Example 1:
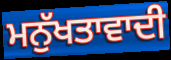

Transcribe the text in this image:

ਮਨੁੱਖਤਾਵਾਦੀ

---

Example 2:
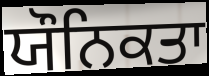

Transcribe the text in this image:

ਯੌਨਿਕਤਾ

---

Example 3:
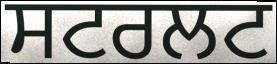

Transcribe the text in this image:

ਸਟਰਲਟ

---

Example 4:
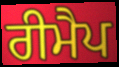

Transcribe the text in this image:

ਰੀਮੈਪ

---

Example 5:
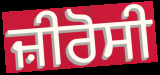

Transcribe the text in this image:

ਜ਼ੀਰੋਸੀ